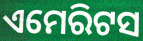
ଏମେରିଟସ